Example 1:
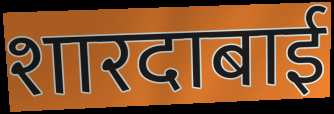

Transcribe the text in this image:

शारदाबाई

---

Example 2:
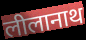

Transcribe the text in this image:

लीलानाथ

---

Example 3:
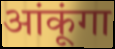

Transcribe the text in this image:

आंकूंगा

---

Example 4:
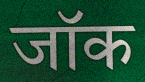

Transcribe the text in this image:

जॉक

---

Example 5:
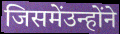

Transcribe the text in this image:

जिसमेंउन्होंने